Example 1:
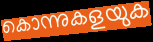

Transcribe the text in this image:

കൊന്നുകളയുക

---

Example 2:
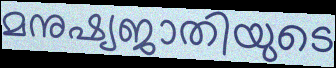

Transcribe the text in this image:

മനുഷ്യജാതിയുടെ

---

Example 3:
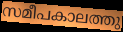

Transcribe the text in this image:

സമീപകാലത്തു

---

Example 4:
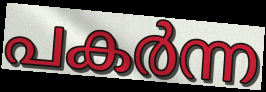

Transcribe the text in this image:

പകർന്ന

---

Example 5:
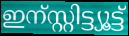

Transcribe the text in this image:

ഇന്സ്റ്റിട്ട്യൂട്ട്